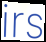
irs